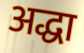
अद्धा